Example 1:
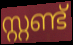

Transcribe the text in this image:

സ്റ്റണ്ട്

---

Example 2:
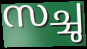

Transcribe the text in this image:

സച്ചു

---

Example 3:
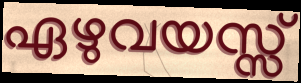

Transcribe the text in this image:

ഏഴുവയസ്സ്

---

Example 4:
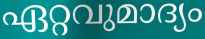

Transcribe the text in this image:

ഏറ്റവുമാദ്യം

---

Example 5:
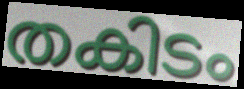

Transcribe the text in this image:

തകിടം